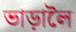
ভাড়ালৈ